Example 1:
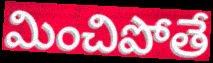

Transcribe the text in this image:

మించిపోతే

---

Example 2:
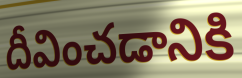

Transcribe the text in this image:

దీవించడానికి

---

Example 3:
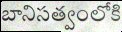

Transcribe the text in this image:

బానిసత్వంలోకి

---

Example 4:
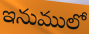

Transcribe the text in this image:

ఇనుములో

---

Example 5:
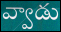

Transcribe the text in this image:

వ్వాడు